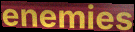
enemies